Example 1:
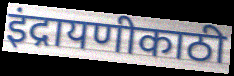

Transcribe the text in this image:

इंद्रायणीकाठी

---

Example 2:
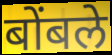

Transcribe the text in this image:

बोंबले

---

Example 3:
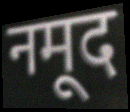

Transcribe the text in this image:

नमूद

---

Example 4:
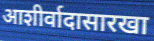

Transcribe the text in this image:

आशीर्वादासारखा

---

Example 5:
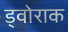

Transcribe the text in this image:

ड्वोराक